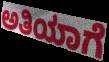
ಅತಿಯಾಗೆ